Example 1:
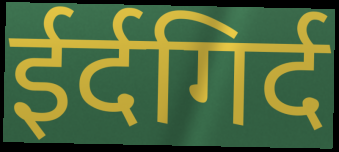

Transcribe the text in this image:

ईर्दगिर्द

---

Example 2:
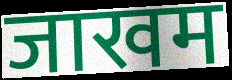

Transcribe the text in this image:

जाखम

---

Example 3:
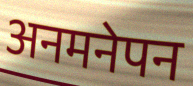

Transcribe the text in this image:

अनमनेपन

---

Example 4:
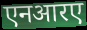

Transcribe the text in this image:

एनआरए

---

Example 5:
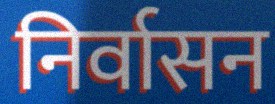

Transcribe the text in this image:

निर्वासन